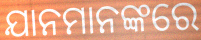
ଯାନମାନଙ୍କରେ